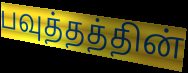
பவுத்தத்தின்